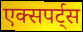
एक्सपर्ट्स